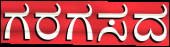
ಗರಗಸದ